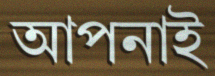
আপনাই